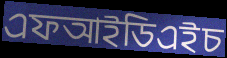
এফআইডিএইচ